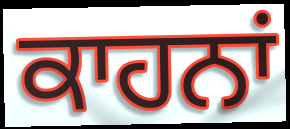
ਕਾਹਨਾਂ